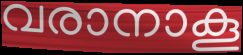
വരാനാകൂ